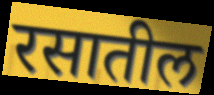
रसातील